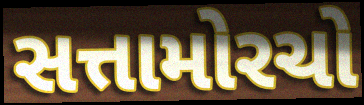
સત્તામોરચો